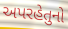
અપરહેતુનો